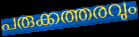
പരുക്കത്തരവും